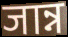
जान्न